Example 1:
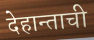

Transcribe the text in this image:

देहान्ताची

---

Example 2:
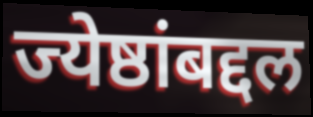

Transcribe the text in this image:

ज्येष्ठांबद्दल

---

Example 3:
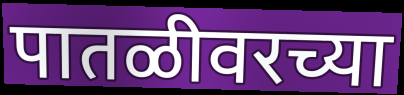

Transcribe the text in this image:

पातळीवरच्या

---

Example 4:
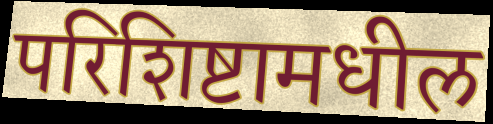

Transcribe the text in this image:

परिशिष्टामधील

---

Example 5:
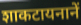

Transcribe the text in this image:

शाकटायनानें